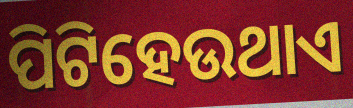
ପିଟିହେଉଥାଏ